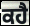
ਕਹੈ